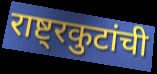
राष्ट्रकुटांची